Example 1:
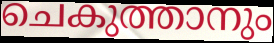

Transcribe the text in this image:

ചെകുത്താനും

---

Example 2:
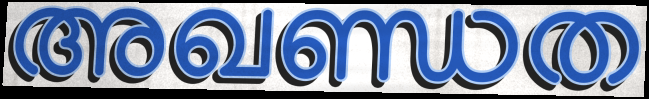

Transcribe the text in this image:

അഖണ്ഡത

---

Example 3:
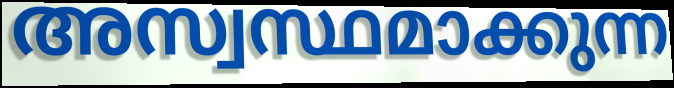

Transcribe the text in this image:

അസ്വസ്ഥമാക്കുന്ന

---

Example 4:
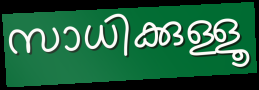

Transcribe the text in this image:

സാധിക്കുള്ളൂ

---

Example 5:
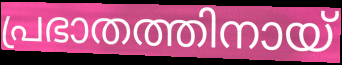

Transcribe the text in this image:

പ്രഭാതത്തിനായ്